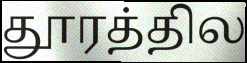
தூரத்தில